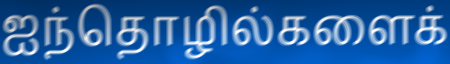
ஐந்தொழில்களைக்